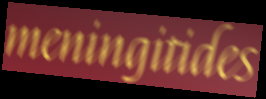
meningitides